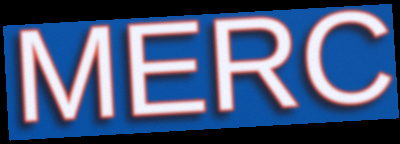
MERC